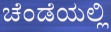
ಚೆಂಡೆಯಲ್ಲಿ